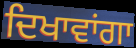
ਦਿਖਾਵਾਂਗਾ